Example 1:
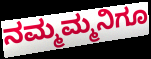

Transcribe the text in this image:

ನಮ್ಮಮ್ಮನಿಗೂ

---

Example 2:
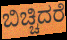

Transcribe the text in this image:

ಬಿಚ್ಚಿದರೆ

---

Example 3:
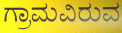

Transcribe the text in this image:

ಗ್ರಾಮವಿರುವ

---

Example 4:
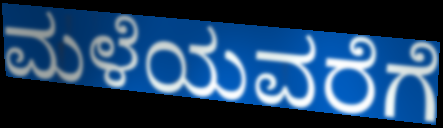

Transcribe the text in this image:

ಮಳೆಯವರೆಗೆ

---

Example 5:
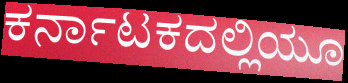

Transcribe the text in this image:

ಕರ್ನಾಟಕದಲ್ಲಿಯೂ